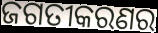
ଜଗତୀକରଣର